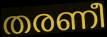
തരണീ